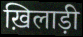
ख़िलाड़ी